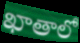
ఖాతాలో